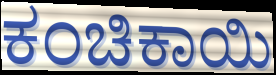
ಕಂಚಿಕಾಯಿ